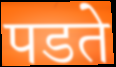
पडते